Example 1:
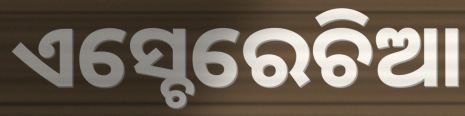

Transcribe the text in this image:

ଏସ୍ଚେରେଚିଆ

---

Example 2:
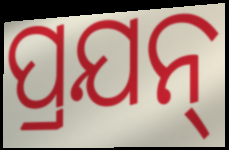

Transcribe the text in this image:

ପ୍ରଯନ୍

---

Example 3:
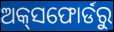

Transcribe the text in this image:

ଅକ୍‌ସଫୋର୍ଡରୁ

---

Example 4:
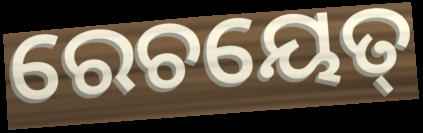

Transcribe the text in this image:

ରେଚୟେତ୍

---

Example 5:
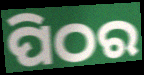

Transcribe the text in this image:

ପିଠର